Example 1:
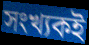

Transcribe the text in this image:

সংখ্যকই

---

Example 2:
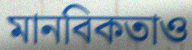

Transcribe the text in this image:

মানবিকতাও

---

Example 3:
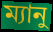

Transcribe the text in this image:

ম্যানু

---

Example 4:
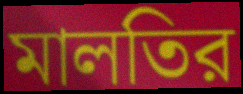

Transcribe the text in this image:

মালতির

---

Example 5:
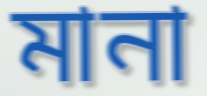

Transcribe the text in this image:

মানা